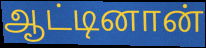
ஆட்டினான்